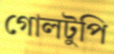
গোলটুপি